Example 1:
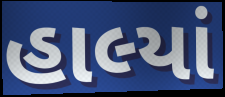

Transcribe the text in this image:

હાલ્યાં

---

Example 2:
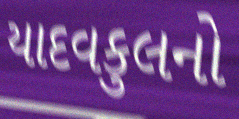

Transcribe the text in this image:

યાદવકુલનો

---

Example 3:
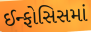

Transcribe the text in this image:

ઈન્ફોસિસમાં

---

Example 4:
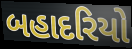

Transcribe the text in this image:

બહાદરિયો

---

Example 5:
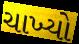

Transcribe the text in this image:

ચાખ્યો